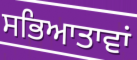
ਸਭਿਆਤਾਵਾਂ